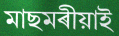
মাছমৰীয়াই